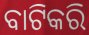
ବାଟିକରି